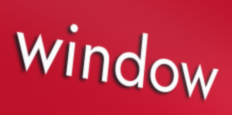
window